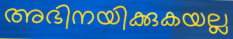
അഭിനയിക്കുകയല്ല